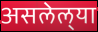
असलेल्या